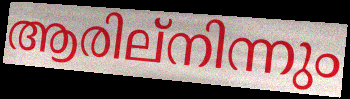
ആരില്നിന്നും